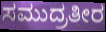
ಸಮುದ್ರತೀರ